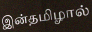
இன்தமிழால்